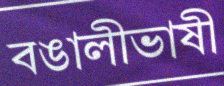
বঙালীভাষী